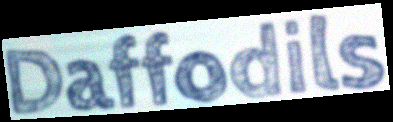
Daffodils